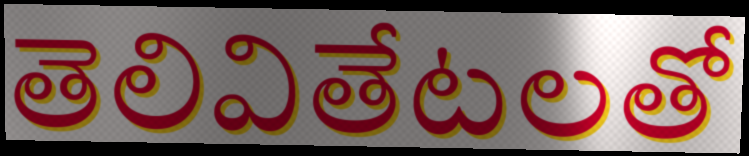
తెలివితేటలతో